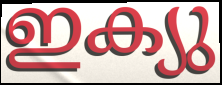
ഇക്യു